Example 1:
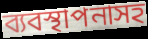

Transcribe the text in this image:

ব্যবস্থাপনাসহ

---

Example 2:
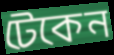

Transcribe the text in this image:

টেকেন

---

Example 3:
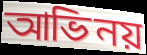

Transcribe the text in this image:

আভিনয়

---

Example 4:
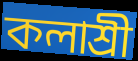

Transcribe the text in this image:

কলাশ্রী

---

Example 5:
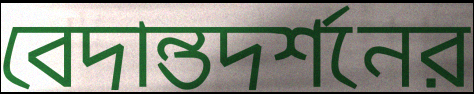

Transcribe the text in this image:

বেদান্তদর্শনের